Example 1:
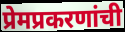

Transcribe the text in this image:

प्रेमप्रकरणांची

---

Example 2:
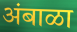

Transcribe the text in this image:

अंबाळा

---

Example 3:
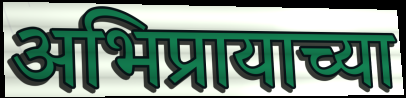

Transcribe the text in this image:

अभिप्रायाच्या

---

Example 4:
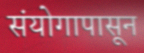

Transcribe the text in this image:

संयोगापासून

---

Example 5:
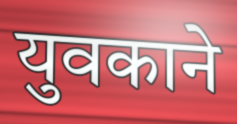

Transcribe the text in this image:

युवकाने